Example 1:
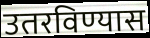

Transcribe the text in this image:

उतरविण्यास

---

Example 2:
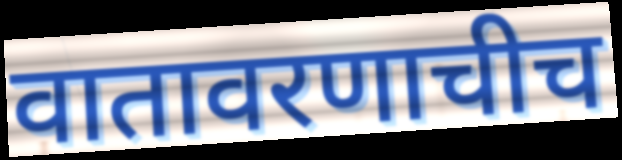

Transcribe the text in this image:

वातावरणाचीच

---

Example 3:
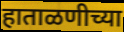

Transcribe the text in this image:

हाताळणीच्या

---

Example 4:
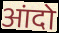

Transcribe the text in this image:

आंदो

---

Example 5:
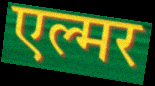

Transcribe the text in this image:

एल्मर